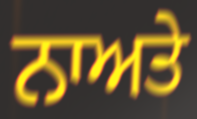
ਨਾਅਤੇ